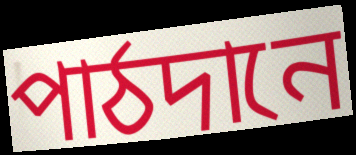
পাঠদানে